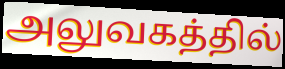
அலுவகத்தில்